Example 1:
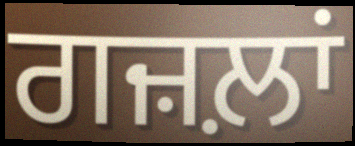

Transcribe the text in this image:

ਗਜ਼ਲ਼ਾਂ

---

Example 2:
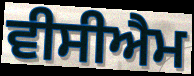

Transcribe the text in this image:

ਵੀਸੀਐਮ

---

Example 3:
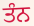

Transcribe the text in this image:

ਤੰਨ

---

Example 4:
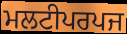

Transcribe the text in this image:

ਮਲਟੀਪਰਪਜ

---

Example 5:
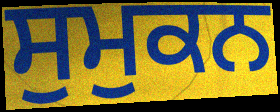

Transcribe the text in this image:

ਸੁਮੁਕਨ